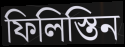
ফিলিস্তিন